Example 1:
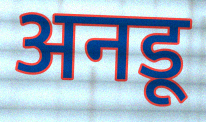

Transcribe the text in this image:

अनडू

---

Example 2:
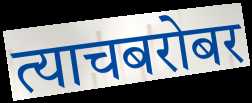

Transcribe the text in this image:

त्‍याचबरोबर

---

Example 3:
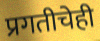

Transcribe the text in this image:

प्रगतीचेही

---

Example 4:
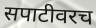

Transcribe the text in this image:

सपाटीवरच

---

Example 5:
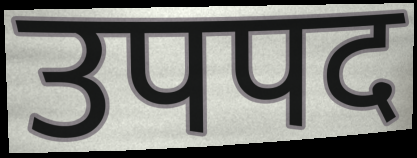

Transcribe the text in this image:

उपपद